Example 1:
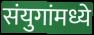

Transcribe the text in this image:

संयुगांमध्ये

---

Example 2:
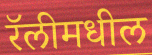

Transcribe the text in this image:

रॅलीमधील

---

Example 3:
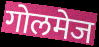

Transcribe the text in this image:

गोलमेज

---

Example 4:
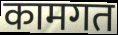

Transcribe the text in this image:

कामगत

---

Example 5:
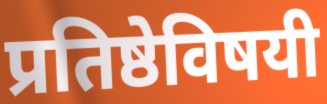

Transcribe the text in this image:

प्रतिष्ठेविषयी